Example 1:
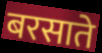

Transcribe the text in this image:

बरसाते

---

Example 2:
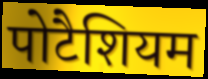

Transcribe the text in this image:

पोटैशियम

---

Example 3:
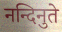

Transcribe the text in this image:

नन्दिनुते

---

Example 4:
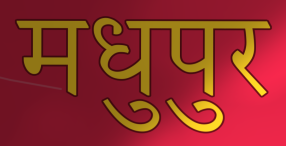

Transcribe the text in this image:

मधुपुर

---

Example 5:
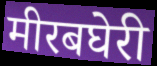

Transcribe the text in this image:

मीरबघेरी